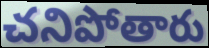
చనిపోతారు